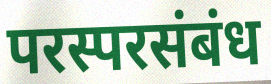
परस्परसंबंध